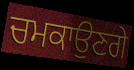
ਚਮਕਾਉਣਗੇ